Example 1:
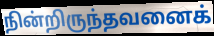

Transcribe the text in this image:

நின்றிருந்தவனைக்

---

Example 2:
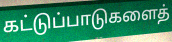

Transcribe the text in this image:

கட்டுப்பாடுகளைத்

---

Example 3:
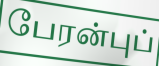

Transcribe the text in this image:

பேரன்புப்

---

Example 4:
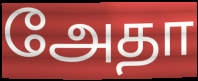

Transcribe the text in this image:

அேதா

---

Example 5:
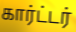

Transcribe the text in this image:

கார்ட்டர்